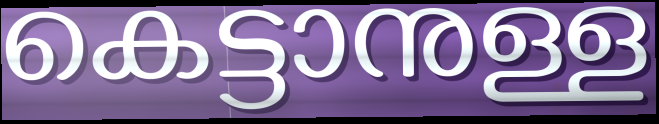
കെട്ടാനുള്ള